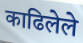
काढिलेले